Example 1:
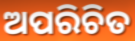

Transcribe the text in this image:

ଅପରିଚିତ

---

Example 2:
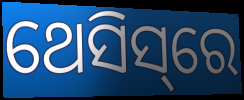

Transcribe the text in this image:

ଥେସିସ୍‌ରେ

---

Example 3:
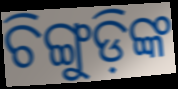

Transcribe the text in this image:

ଚିଙ୍ଗୁଡ଼ିଙ୍କ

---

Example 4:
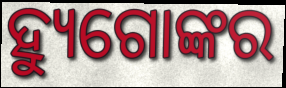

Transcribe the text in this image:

ହ୍ୟୁଗୋଙ୍କର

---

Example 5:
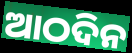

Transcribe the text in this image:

ଆଠଦିନ